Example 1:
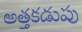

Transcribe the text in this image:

అత్తకడుపు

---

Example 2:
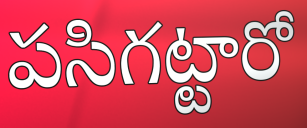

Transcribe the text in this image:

పసిగట్టారో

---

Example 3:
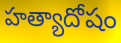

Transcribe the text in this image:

హత్యాదోషం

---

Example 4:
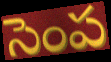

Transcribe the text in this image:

సెంప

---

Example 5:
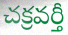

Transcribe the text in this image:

చక్రవర్తీ